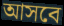
আসবে